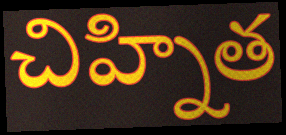
చిహ్నిత